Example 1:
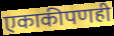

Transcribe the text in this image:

एकाकीपणही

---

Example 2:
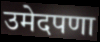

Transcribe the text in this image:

उमेदपणा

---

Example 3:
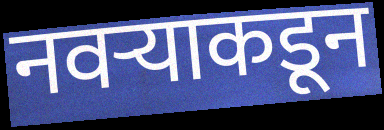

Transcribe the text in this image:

नवऱ्याकडून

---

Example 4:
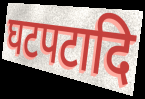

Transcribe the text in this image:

घटपटादि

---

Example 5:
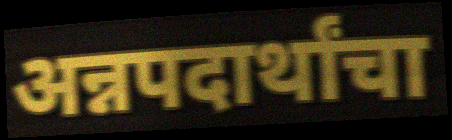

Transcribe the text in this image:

अन्नपदार्थांचा